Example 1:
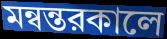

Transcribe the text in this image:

মন্বন্তরকালে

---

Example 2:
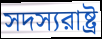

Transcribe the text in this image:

সদস্যরাষ্ট্র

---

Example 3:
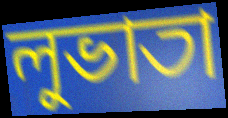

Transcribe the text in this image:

লুভাতা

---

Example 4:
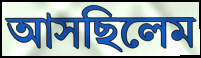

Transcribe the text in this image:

আসছিলেম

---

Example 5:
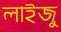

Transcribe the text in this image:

লাইজু